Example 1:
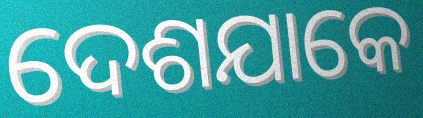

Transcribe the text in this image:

ଦେଶଯାକେ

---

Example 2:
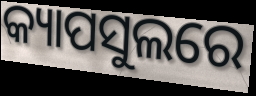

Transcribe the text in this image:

କ୍ୟାପସୁଲରେ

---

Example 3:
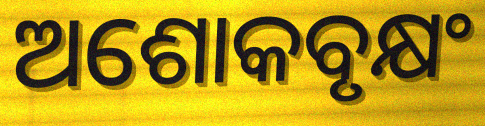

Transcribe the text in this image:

ଅଶୋକବୃକ୍ଷଂ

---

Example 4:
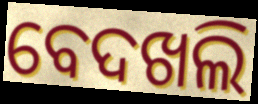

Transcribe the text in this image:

ବେଦଖଲି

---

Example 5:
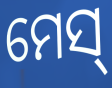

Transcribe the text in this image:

ମେସ୍